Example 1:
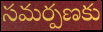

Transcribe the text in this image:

సమర్పణకు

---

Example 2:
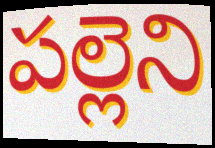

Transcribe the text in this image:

పల్లెని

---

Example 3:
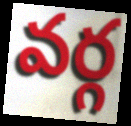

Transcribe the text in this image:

వర్గ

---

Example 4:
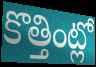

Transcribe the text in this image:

కొత్తింట్లో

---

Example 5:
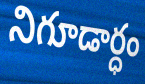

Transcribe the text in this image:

నిగూడార్ధం